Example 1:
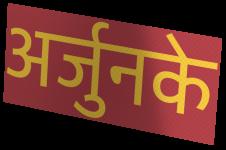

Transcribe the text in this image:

अर्जुनके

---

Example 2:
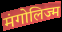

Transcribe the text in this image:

मंगोलिज्म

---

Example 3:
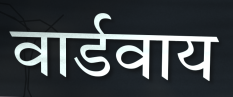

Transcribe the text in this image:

वार्डवाय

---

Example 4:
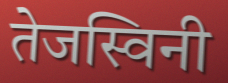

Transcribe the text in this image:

तेजस्विनी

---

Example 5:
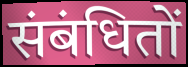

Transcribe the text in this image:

संबंधितों